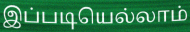
இப்படியெல்லாம்